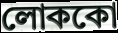
লোককো